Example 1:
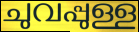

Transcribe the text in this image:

ചുവപ്പുള്ള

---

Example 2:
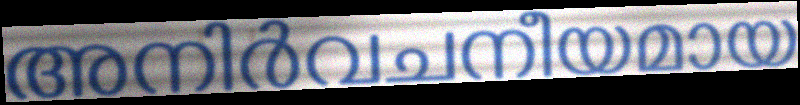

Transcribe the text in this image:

അനിർവചനീയമായ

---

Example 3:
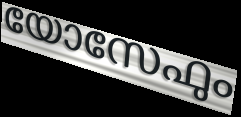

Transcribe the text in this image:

യോസേഫും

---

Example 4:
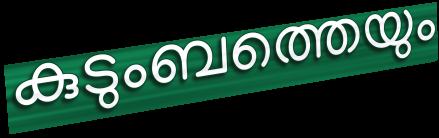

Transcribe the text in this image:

കുടുംബത്തെയും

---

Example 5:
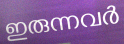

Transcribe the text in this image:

ഇരുന്നവർ